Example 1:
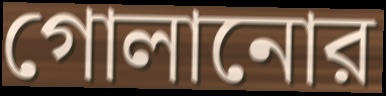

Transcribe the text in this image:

গোলানোর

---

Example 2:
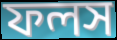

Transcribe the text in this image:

ফলস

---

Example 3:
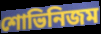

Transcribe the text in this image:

শোভিনিজম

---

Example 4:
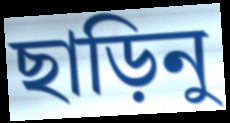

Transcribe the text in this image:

ছাড়িনু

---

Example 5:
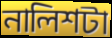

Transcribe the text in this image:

নালিশটা